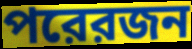
পরেরজন